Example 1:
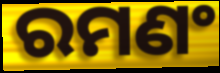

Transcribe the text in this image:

ରମଣଂ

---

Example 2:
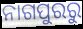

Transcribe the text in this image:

ନାଗପୁରରୁ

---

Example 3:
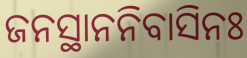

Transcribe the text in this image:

ଜନସ୍ଥାନନିବାସିନଃ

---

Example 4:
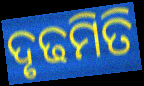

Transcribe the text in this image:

ଦୃଢମିତି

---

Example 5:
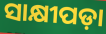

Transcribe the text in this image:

ସାକ୍ଷୀପଡ଼ା